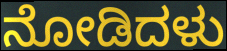
ನೋಡಿದಳು